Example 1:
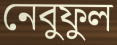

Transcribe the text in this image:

নেবুফুল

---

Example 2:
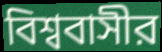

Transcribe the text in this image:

বিশ্ববাসীর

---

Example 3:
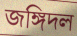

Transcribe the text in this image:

জঙ্গিদল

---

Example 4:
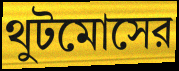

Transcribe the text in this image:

থুটমোসের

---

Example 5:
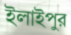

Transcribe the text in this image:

ইলাইপুর